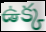
ఉక్క